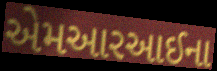
એમઆરઆઈના